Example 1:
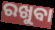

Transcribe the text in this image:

ରଖୁବା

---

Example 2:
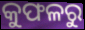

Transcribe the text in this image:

କୁଫଳରୁ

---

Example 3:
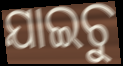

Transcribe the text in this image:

ଯାଇଚୁ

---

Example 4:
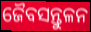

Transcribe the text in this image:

ଜୈବସନ୍ତୁଳନ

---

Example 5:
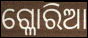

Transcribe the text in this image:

ଗ୍ଳୋରିଆ